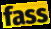
fass